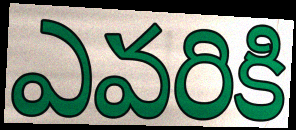
ఎవరికి